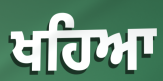
ਖਹਿਆ